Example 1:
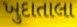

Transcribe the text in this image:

ખુદાતાલા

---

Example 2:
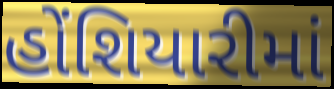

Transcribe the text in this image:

હોંશિયારીમાં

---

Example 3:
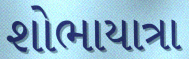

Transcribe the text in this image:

શોભાયાત્રા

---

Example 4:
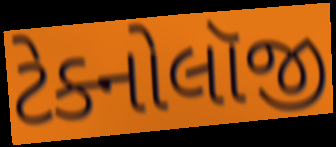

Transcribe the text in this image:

ટેક્નોલૉજી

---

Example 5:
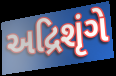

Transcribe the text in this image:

અદ્રિશૃંગે